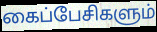
கைப்பேசிகளும்